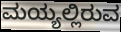
ಮಯ್ಯಲ್ಲಿರುವ